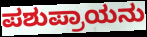
ಪಶುಪ್ರಾಯನು